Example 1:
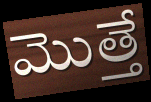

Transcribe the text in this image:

మొత్తే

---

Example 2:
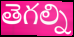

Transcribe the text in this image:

తెగల్ని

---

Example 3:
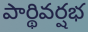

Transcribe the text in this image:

పార్థివర్షభ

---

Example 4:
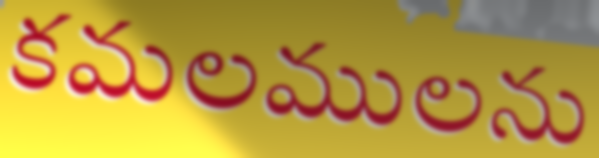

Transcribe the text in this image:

కమలములను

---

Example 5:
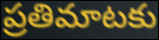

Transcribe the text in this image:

ప్రతిమాటకు